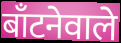
बाँटनेवाले